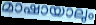
മാഷായാലും